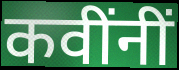
कवींनीं